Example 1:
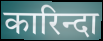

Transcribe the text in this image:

कारिन्दा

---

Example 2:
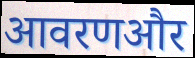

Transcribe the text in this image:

आवरणऔर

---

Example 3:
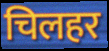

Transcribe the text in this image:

चिलहर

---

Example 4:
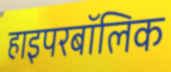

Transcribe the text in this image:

हाइपरबॉलिक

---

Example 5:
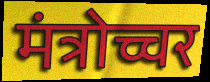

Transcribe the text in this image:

मंत्रोच्चर